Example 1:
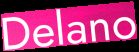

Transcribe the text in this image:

Delano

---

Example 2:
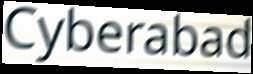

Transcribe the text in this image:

Cyberabad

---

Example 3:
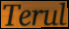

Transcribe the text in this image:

Terul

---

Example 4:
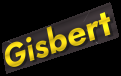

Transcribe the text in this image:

Gisbert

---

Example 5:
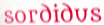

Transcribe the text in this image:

sordidus